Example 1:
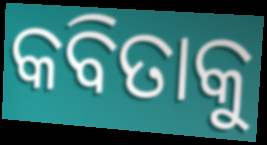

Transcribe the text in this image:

କବିତାକୁ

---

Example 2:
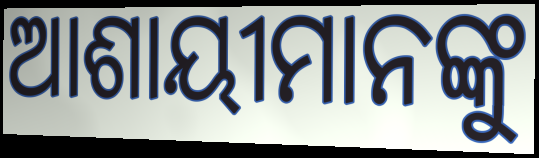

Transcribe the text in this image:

ଆଶାୟୀମାନଙ୍କୁ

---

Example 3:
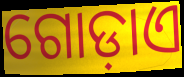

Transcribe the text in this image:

ଗୋଡ଼ାଏ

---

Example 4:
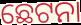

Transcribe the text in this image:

ଛେଟନା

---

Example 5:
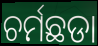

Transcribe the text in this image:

ଚର୍ମଛଡା